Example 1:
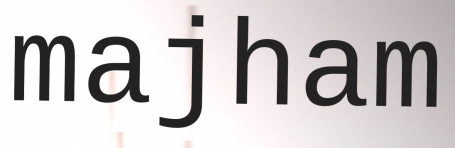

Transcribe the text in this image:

majham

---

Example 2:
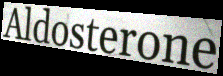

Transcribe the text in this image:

Aldosterone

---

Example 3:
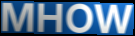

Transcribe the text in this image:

MHOW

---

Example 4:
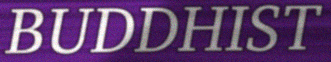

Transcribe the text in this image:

BUDDHIST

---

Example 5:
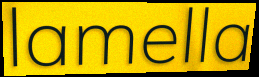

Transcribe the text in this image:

lamella